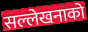
सल्लेखनाको